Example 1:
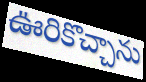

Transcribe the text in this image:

ఊరికొచ్చాను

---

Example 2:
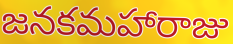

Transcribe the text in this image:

జనకమహారాజు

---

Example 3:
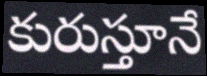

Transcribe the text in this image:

కురుస్తూనే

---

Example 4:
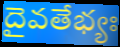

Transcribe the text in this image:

దైవతేభ్యః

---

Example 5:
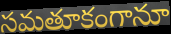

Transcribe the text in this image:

సమతూకంగానూ